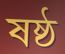
ষষ্ঠ